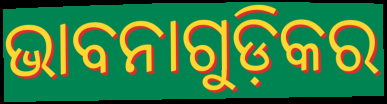
ଭାବନାଗୁଡ଼ିକର